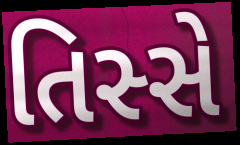
તિસ્સે